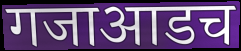
गजाआडच